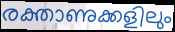
രക്താണുക്കളിലും